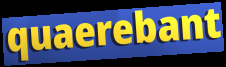
quaerebant